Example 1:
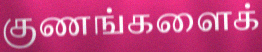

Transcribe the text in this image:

குணங்களைக்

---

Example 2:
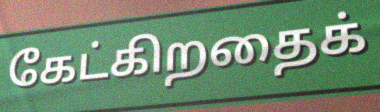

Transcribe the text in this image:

கேட்கிறதைக்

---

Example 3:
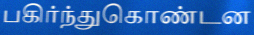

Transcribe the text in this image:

பகிர்ந்துகொண்டன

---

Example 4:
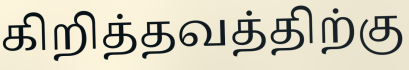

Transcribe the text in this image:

கிறித்தவத்திற்கு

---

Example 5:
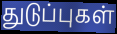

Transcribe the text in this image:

துடுப்புகள்